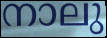
നാലു